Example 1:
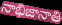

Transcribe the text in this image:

నాభిజానాతి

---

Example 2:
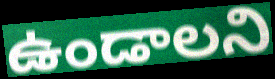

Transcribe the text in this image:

ఉండాలని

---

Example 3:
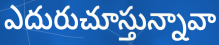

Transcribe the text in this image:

ఎదురుచూస్తున్నావా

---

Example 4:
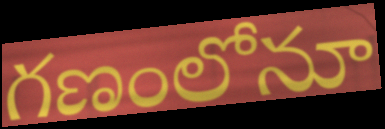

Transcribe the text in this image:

గణంలోనూ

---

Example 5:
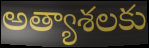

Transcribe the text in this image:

అత్యాశలకు